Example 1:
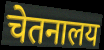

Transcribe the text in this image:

चेतनालय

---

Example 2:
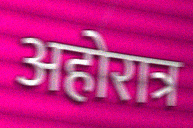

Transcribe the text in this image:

अहोरात्र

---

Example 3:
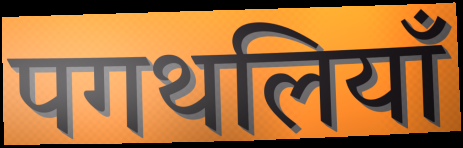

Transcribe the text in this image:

पगथलियाँ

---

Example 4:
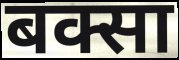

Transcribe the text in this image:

बक्सा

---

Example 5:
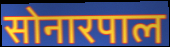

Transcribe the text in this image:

सोनारपाल